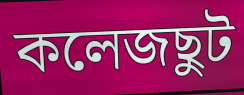
কলেজছুট